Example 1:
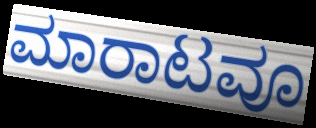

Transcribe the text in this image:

ಮಾರಾಟವೂ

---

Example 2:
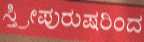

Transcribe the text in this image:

ಸ್ತ್ರೀಪುರುಷರಿಂದ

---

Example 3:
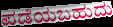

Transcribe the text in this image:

ಪಡೆಯಬಹುದು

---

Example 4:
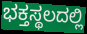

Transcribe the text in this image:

ಭಕ್ತಸ್ಥಲದಲ್ಲಿ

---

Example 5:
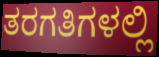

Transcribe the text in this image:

ತರಗತಿಗಳಲ್ಲಿ